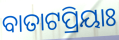
ବାତାଟପ୍ରିୟାଃ